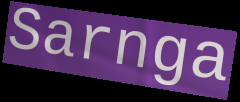
Sarnga